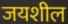
जयशील